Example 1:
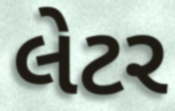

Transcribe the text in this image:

લેટર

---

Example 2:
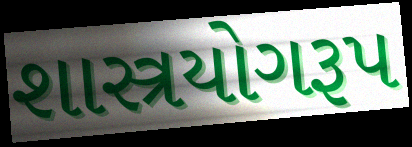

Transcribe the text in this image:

શાસ્ત્રયોગરૂપ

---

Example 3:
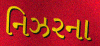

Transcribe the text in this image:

નિઝરના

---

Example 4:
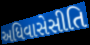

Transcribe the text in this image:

અધિવાસેસીતિ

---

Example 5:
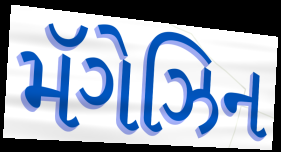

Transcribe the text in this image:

મૅગેઝિન